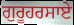
ਗੁਰੂਹਰਸਾਏ